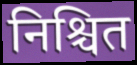
निश्चित